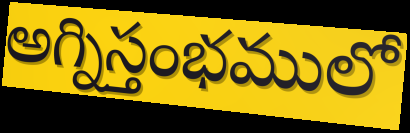
అగ్నిస్తంభములో